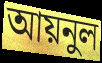
আয়নুল